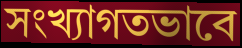
সংখ্যাগতভাবে